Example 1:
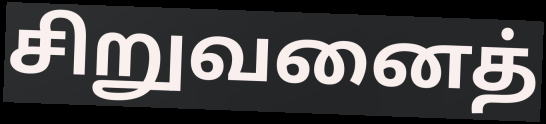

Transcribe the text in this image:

சிறுவனைத்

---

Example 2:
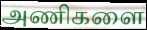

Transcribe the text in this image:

அணிகளை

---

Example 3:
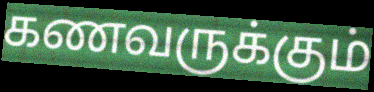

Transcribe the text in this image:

கணவருக்கும்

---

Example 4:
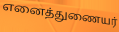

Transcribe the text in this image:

எனைத்துணையர்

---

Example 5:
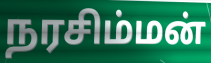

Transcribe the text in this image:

நரசிம்மன்